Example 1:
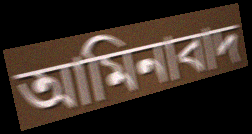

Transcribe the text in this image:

আমিনাবাদ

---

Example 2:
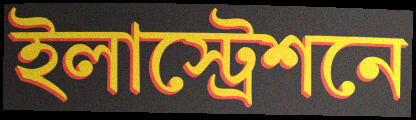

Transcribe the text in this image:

ইলাস্ট্রেশনে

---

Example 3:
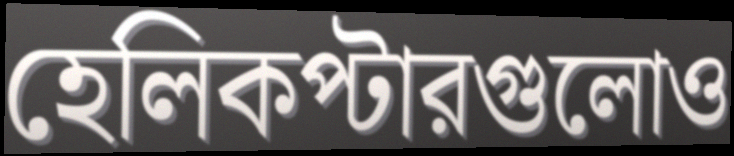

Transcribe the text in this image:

হেলিকপ্টারগুলোও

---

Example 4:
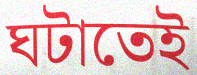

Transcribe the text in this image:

ঘটাতেই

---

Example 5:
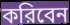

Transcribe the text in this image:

করিবেন